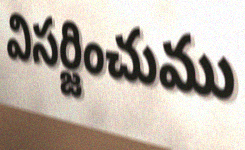
విసర్జించుము